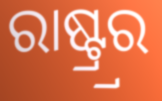
ରାଷ୍ଟ୍ର୍ରର